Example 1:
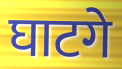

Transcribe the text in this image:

घाटगे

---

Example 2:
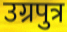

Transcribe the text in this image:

उग्रपुत्र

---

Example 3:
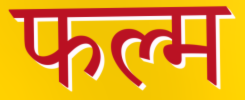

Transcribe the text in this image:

फल्म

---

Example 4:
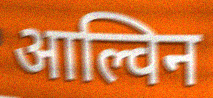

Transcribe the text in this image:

आल्विन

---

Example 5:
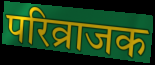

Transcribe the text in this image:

परिव्राजक